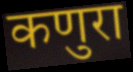
कणुरा